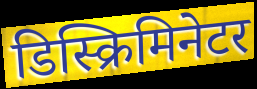
डिस्क्रिमिनेटर